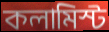
কলামিস্ট